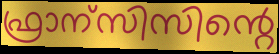
ഫ്രാന്സിസിന്റെ